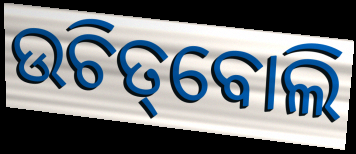
ଉଚିତ୍‌ବୋଲି